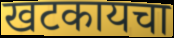
खटकायचा